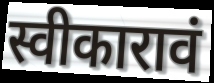
स्वीकारावं